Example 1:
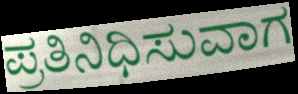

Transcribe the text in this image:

ಪ್ರತಿನಿಧಿಸುವಾಗ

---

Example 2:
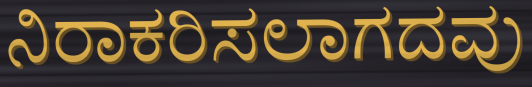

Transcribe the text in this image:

ನಿರಾಕರಿಸಲಾಗದವು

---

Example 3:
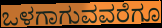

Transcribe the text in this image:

ಒಳಗಾಗುವವರೆಗೂ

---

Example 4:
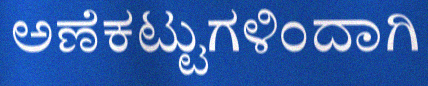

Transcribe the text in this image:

ಅಣೆಕಟ್ಟುಗಳಿಂದಾಗಿ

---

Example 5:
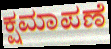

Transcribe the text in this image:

ಕ್ಷಮಾಪಣೆ